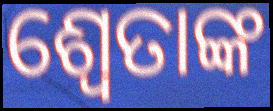
ଶ୍ଵେତାଙ୍କ